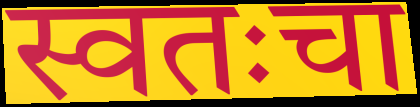
स्वतःचा